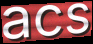
acs